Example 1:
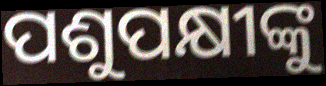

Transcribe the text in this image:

ପଶୁପକ୍ଷୀଙ୍କୁ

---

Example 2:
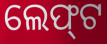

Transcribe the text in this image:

ଲେଫ୍‌ଟ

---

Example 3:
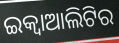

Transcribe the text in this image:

ଇକ୍ୱାଆଲିଟିର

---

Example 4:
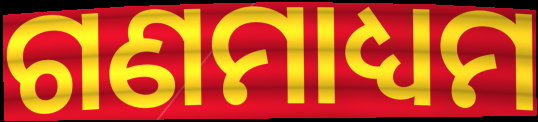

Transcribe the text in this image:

ଗଣମାଧ୍ୟମ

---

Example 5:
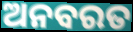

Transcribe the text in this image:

ଅନବରତ